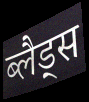
ब्लैड्स